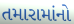
તમારામાંનો